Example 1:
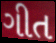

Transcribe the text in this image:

ગીત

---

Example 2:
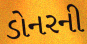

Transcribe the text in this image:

ડોનરની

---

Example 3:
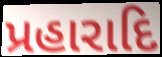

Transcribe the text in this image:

પ્રહારાદિ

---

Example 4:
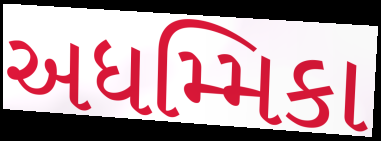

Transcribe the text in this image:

અધમ્મિકા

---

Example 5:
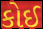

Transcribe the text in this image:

કોઈ